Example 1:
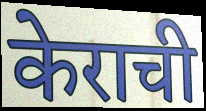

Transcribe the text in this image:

केराची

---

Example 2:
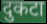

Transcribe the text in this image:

दुकटा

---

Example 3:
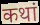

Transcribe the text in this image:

कथां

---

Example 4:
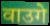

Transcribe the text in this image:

वाउगे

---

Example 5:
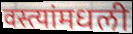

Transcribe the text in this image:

वस्त्यांमधली